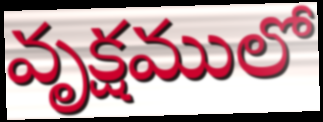
వృక్షములో